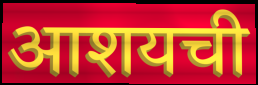
आशयची